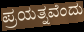
ಪ್ರಯತ್ನವೆಂದು